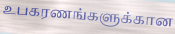
உபகரணங்களுக்கான